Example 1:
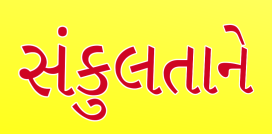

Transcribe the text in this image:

સંકુલતાને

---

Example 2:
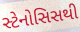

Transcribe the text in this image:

સ્ટેનોસિસથી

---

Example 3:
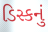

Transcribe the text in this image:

ડિસ્કનું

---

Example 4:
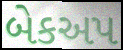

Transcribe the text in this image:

બેકઅપ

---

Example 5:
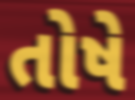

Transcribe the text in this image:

તોષે